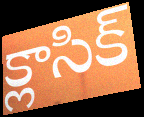
క్లాసిక్